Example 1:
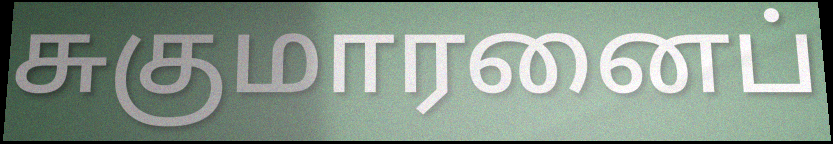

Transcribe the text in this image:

சுகுமாரனைப்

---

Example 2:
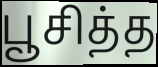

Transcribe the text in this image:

பூசித்த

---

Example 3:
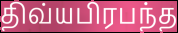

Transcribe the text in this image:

திவ்யபிரபந்த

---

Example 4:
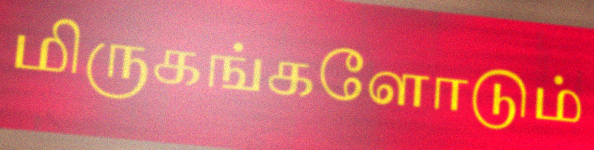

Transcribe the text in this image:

மிருகங்களோடும்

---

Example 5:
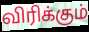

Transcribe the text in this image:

விரிக்கும்